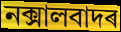
নক্সালবাদৰ